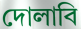
দোলাবি